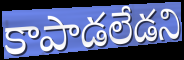
కాపాడలేడని